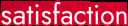
satisfaction